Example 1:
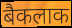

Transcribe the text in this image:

बैकलाक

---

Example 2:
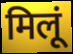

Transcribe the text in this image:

मिलूं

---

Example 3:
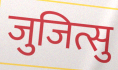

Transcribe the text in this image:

जुजित्सु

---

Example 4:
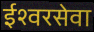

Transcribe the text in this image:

ईश्वरसेवा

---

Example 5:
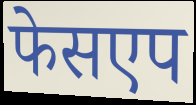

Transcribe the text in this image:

फेसएप